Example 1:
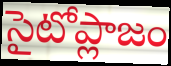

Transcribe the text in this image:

సైటోప్లాజం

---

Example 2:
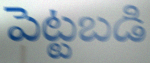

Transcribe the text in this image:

పెట్టబడి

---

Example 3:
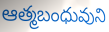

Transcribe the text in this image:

ఆత్మబంధువుని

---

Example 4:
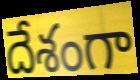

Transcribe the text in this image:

దేశంగా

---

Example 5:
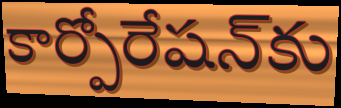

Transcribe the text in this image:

కార్పోరేషన్‌కు